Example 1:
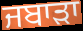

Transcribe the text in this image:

ਜਬਾੜਾ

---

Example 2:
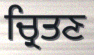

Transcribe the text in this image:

ਚ੍ਰਿਤਣ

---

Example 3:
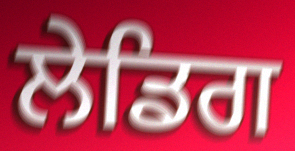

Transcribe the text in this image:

ਲੇਡਿਗ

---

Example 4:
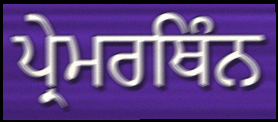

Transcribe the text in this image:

ਪ੍ਰੇਮਰਥਿੰਨ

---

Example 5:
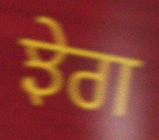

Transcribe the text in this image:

ਝੇਗ